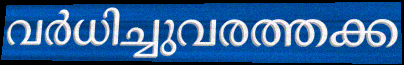
വർധിച്ചുവരത്തക്ക